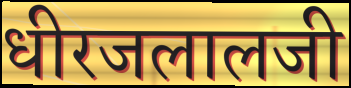
धीरजलालजी